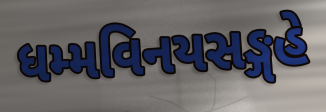
ધમ્મવિનયસઙ્ગહે